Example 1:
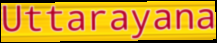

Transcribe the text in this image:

Uttarayana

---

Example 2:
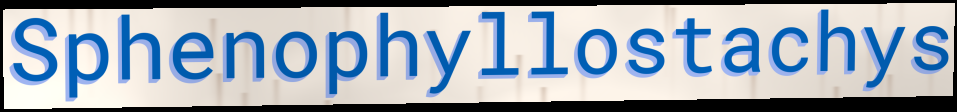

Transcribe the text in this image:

Sphenophyllostachys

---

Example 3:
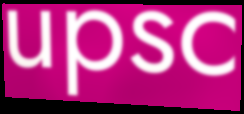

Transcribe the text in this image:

upsc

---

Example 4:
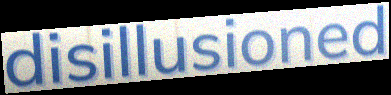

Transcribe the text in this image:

disillusioned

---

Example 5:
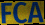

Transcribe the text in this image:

FCA